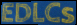
EDLCs